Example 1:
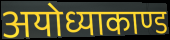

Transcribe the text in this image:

अयोध्याकाण्ड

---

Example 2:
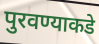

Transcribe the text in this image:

पुरवण्याकडे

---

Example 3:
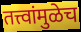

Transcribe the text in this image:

तत्त्वांमुळेच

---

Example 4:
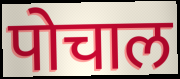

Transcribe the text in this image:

पोचाल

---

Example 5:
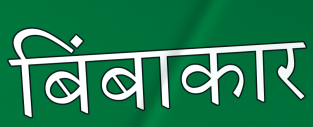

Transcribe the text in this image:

बिंबाकार